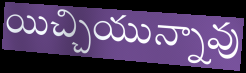
యిచ్చియున్నావు